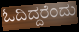
ಓದಿದ್ದರೆಂದು